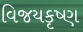
વિજયકૃષ્ણ